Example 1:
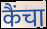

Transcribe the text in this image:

कैंचा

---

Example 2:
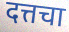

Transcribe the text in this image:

दत्तचा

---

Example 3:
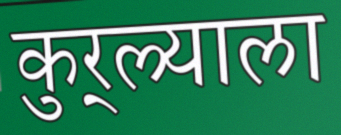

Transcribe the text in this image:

कुर्ल्याला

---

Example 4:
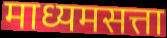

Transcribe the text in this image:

माध्यमसत्ता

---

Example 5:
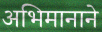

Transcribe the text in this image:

अभिमानाने